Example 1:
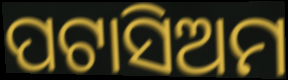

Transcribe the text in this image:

ପଟାସିଅମ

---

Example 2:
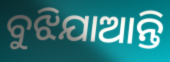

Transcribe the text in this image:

ବୁଝିଯାଆନ୍ତି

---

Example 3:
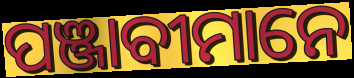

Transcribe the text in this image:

ପଞ୍ଜାବୀମାନେ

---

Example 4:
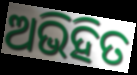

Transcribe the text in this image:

ଅଭିହିତ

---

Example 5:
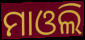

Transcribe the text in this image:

ମାଓଲି